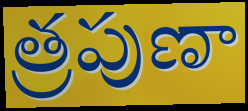
త్రపుణా